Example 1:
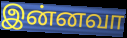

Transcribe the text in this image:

இன்னவா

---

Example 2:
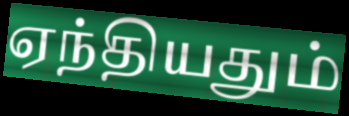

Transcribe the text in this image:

ஏந்தியதும்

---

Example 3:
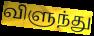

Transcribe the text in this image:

விளுந்து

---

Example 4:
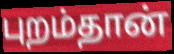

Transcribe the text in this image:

புறம்தான்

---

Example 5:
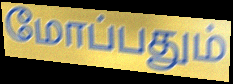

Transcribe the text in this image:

மோப்பதும்